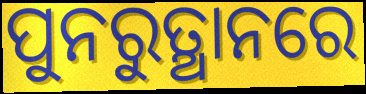
ପୁନରୁତ୍ଥାନରେ